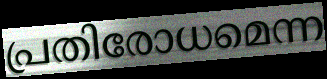
പ്രതിരോധമെന്ന